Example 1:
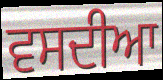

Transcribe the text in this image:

ਵਸਦੀਆ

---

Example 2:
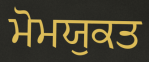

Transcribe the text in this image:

ਮੋਮਯੁਕਤ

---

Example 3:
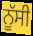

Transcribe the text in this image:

ਨੂੱਸੀ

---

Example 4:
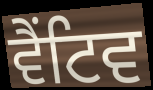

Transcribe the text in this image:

ਵੈਂਟਿਵ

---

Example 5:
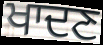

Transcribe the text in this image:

ਖਾਦਣ